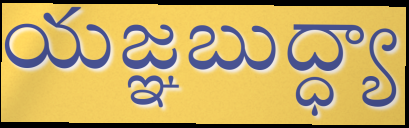
యజ్ఞబుద్ధ్యా